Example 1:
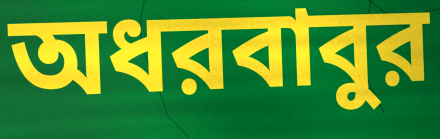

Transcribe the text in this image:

অধরবাবুর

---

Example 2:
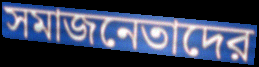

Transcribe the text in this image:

সমাজনেতাদের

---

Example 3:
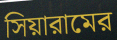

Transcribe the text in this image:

সিয়ারামের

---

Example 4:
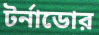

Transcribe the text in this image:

টর্নাডোর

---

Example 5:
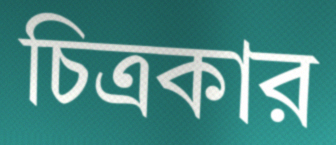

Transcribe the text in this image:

চিত্রকার